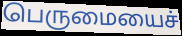
பெருமையைச்